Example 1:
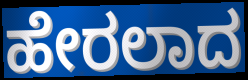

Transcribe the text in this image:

ಹೇರಲಾದ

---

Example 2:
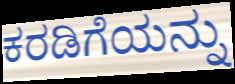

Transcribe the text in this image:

ಕರಡಿಗೆಯನ್ನು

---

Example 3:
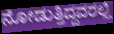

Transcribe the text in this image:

ನೋಡುತ್ತಿದ್ದವರಲ್ಲಿ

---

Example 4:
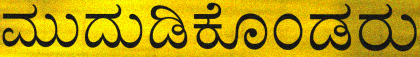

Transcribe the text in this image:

ಮುದುಡಿಕೊಂಡರು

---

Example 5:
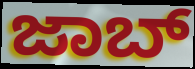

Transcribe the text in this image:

ಜಾಬ್